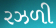
રઝળી